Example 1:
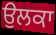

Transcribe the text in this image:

ਉਲਕਾ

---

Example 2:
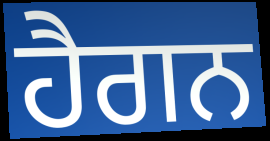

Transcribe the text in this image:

ਹੈਗਨ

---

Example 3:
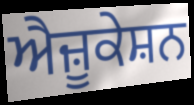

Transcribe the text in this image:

ਐਜ਼ੂਕੇਸ਼ਨ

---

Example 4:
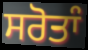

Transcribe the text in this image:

ਸਰੋਤਾੰ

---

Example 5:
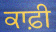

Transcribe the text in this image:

ਕਾਫ਼ੀ